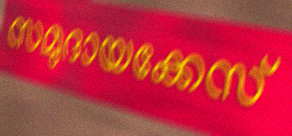
സമുദായക്കേസ്